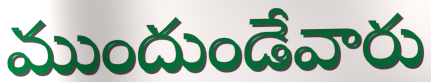
ముందుండేవారు